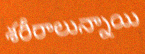
శరీరాలున్నాయి